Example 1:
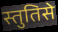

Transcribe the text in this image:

स्तुतिसे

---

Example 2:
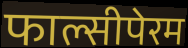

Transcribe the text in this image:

फाल्सीपेरम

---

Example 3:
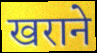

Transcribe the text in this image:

खराने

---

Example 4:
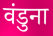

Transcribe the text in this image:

वंडुना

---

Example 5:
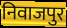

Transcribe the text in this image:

निवाजपुर